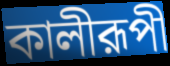
কালীরূপী